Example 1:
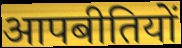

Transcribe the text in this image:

आपबीतियों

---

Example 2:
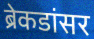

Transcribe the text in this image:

ब्रेकडांसर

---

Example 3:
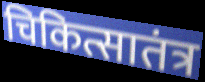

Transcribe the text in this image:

चिकित्सातंत्र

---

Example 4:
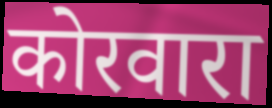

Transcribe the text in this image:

कोरवारा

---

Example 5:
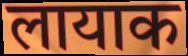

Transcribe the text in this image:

लायाक